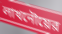
লাখনৌয়ের